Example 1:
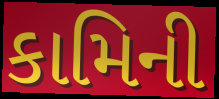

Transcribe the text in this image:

કામિની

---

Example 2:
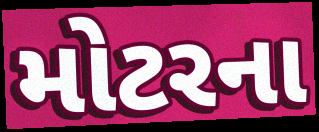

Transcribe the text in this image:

મોટરના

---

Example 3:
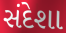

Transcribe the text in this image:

સંદેશા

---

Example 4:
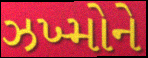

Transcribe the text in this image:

ઝખ્મોને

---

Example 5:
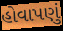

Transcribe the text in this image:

હોવાપણું